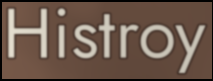
Histroy